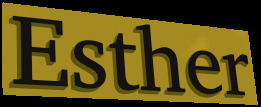
Esther